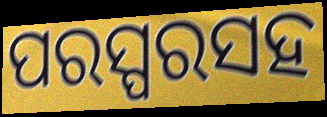
ପରସ୍ପରସହ